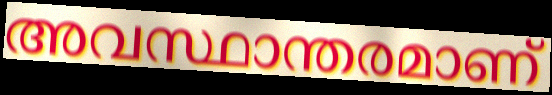
അവസ്ഥാന്തരമാണ്